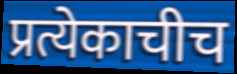
प्रत्येकाचीच